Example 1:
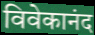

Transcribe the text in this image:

विवेकानंद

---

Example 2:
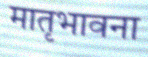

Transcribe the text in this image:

मातृभावना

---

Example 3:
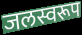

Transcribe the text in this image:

जलस्वरूप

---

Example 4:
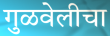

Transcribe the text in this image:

गुळवेलीचा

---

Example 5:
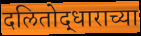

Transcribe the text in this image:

दलितोद्धाराच्या